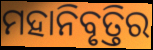
ମହାନିବୃତ୍ତିର